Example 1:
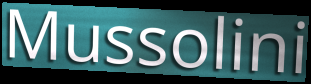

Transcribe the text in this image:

Mussolini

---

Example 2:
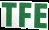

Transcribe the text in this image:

TFE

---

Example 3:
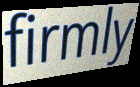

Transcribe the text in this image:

firmly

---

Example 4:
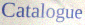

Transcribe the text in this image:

Catalogue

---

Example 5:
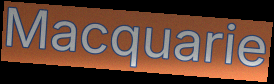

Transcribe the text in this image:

Macquarie